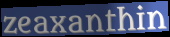
zeaxanthin